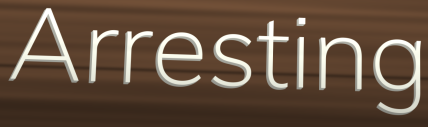
Arresting